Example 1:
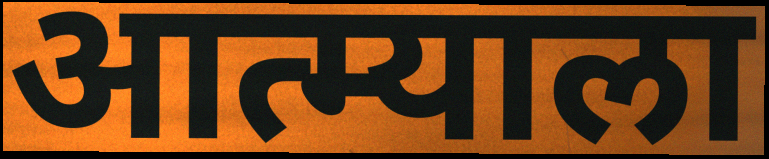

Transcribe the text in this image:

आत्म्याला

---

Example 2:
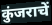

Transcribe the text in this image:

कुंजराचें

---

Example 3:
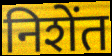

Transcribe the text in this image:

निशेंत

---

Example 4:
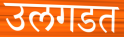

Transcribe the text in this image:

उलगडत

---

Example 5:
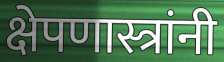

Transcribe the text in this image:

क्षेपणास्त्रांनी